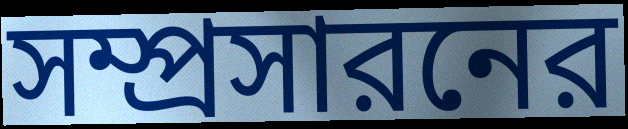
সম্প্রসারনের